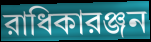
রাধিকারঞ্জন